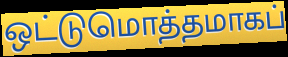
ஒட்டுமொத்தமாகப்